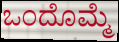
ಒಂದೊಮ್ಮೆ